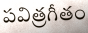
పవిత్రగీతం